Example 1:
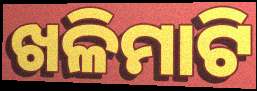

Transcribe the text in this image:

ଖଳିମାଟି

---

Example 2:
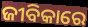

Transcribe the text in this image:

ଜୀବିକାରେ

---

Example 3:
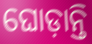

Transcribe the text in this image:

ଘୋଡ଼ାନ୍ତି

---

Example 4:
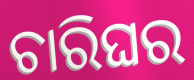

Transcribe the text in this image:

ଚାରିଘର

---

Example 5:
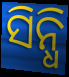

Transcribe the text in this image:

ସିନ୍ଧି